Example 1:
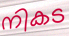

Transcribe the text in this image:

നികട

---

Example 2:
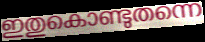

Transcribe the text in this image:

ഇതുകൊണ്ടുതന്നെ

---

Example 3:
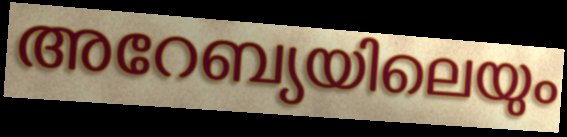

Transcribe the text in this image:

അറേബ്യയിലെയും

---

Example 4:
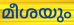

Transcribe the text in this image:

മീശയും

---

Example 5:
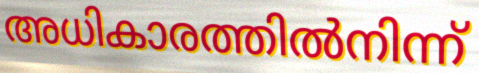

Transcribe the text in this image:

അധികാരത്തിൽനിന്ന്